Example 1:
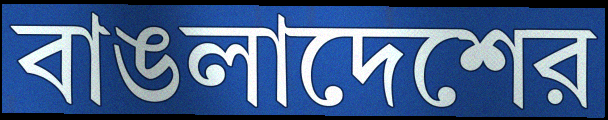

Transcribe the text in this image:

বাঙলাদেশের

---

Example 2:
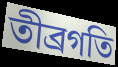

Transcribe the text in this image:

তীব্রগতি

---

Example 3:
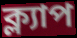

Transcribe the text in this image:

ক্ল্যাপ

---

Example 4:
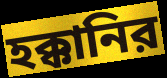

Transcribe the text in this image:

হক্কানির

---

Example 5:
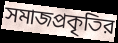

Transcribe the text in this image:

সমাজপ্রকৃতির